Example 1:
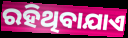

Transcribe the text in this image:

ରହିଥିବାଯାଏ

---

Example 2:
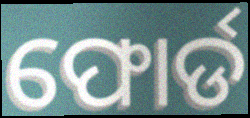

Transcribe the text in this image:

ଫୋର୍ଡ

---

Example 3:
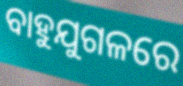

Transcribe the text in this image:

ବାହୁଯୁଗଳରେ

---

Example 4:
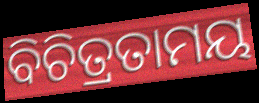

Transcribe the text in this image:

ବିଚିତ୍ରତାମୟ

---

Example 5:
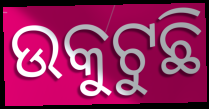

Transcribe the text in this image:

ଉକୁଟୁଛି